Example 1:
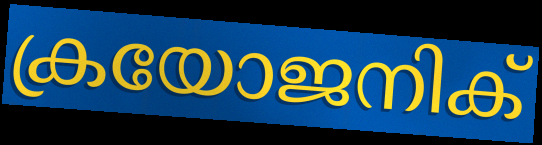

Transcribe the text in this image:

ക്രയോജനിക്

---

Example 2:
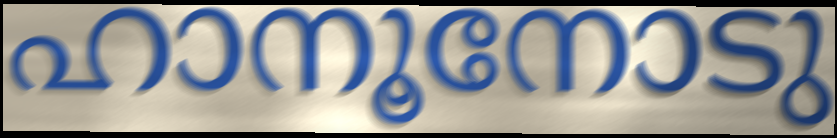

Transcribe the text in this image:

ഹാനൂനോടു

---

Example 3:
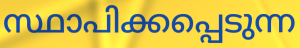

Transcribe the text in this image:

സ്ഥാപിക്കപ്പെടുന്ന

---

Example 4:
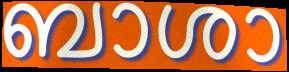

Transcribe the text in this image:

ബാശാ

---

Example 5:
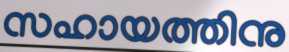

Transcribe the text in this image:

സഹായത്തിനു